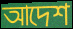
আদেশ